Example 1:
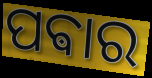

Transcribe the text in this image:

ପଵାର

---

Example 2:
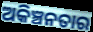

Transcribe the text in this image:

ଅକିଞ୍ଚନତାର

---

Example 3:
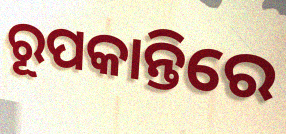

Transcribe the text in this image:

ରୂପକାନ୍ତିରେ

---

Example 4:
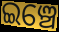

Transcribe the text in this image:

ଇଞ୍ଚେ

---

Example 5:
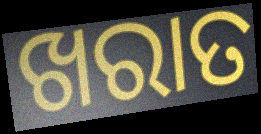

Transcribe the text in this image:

ଖରାତ